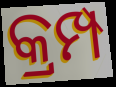
କ୍ରମ୍ପ